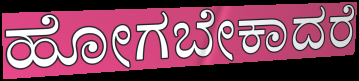
ಹೋಗಬೇಕಾದರೆ